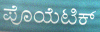
ಪೊಯೆಟಿಕ್